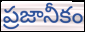
ప్రజానీకం